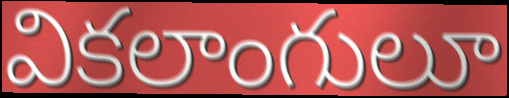
వికలాంగులూ